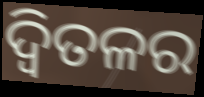
ଦ୍ୱିତଳର